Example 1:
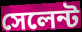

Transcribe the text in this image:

সেলেন্ট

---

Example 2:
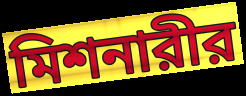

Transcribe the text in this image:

মিশনারীর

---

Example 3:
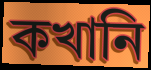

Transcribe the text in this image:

কখানি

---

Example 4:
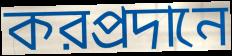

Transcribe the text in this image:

করপ্রদানে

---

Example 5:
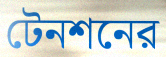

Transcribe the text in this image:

টেনশনের